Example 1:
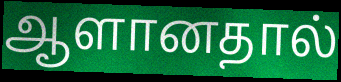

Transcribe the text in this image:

ஆளானதால்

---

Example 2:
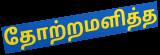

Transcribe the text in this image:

தோற்றமளித்த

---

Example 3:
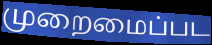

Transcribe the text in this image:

முறைமைப்பட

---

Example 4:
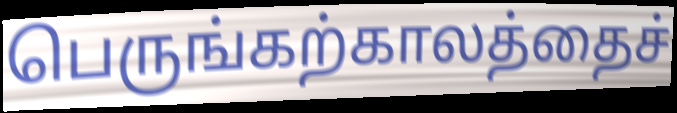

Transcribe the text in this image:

பெருங்கற்காலத்தைச்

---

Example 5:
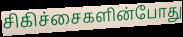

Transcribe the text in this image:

சிகிச்சைகளின்போது